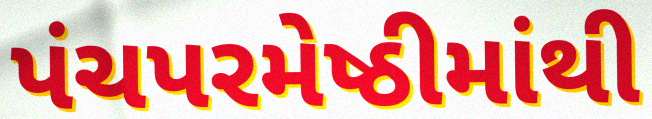
પંચપરમેષ્ઠીમાંથી